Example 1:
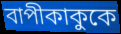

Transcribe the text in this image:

বাপীকাকুকে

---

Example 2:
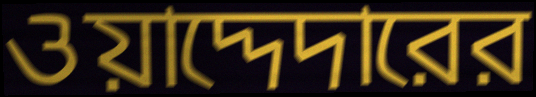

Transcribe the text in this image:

ওয়াদ্দেদারের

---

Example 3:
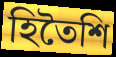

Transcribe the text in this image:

হিতৈশি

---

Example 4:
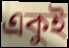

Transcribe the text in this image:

একুই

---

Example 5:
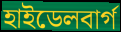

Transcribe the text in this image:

হাইডেলবার্গ